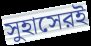
সুহাসেরই